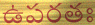
ఉపరతః